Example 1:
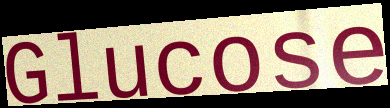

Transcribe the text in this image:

Glucose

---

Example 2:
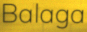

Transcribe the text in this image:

Balaga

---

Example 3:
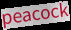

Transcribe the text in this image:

peacock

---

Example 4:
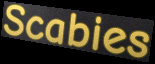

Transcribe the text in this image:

Scabies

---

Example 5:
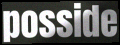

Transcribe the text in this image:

posside